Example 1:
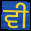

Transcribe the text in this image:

ਵੀ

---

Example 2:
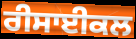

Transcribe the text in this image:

ਰੀਸਾਈਕਲ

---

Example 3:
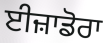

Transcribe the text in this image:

ਈਜ਼ਾਡੋਰਾ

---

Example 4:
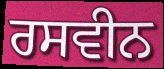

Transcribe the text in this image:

ਰਸਵੀਨ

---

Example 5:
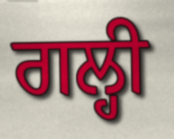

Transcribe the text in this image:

ਗਲ੍ਹੀ